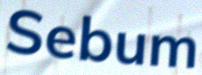
Sebum